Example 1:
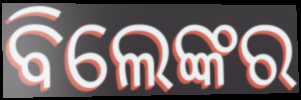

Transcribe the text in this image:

ବିଲେଙ୍କର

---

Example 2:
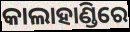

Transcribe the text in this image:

କାଲାହାଣ୍ଡିରେ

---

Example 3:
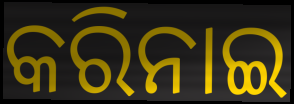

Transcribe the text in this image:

କରିନାଇ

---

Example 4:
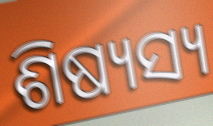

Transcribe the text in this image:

ଶିଷ୍ୟସ୍ୟ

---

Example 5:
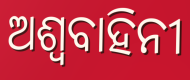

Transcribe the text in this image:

ଅଶ୍ୱବାହିନୀ